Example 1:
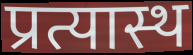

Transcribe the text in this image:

प्रत्यास्थ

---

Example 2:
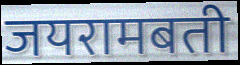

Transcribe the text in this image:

जयरामबती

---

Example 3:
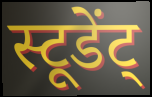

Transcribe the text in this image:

स्टूडेंट्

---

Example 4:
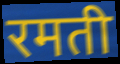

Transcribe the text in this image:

रमती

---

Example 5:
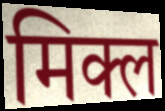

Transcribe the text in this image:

मिक्ल